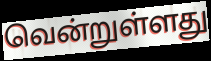
வென்றுள்ளது